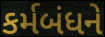
કર્મબંધને